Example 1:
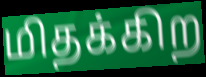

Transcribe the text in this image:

மிதக்கிற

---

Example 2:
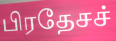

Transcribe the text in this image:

பிரதேசச்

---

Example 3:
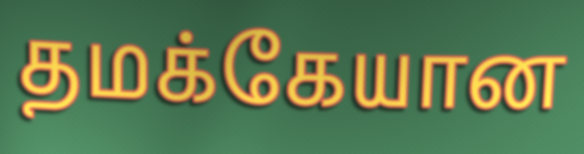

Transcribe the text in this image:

தமக்கேயான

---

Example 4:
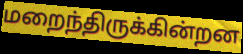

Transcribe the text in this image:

மறைந்திருக்கின்றன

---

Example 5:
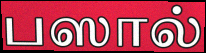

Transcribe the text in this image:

பஸால்